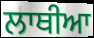
ਲਾਥੀਆ